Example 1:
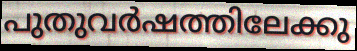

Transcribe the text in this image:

പുതുവർഷത്തിലേക്കു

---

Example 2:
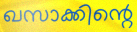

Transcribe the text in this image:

ഖസാക്കിന്റെ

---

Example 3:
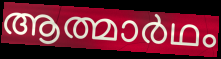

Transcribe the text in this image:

ആത്മാർഥം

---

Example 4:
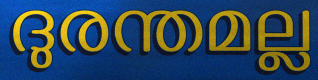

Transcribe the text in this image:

ദുരന്തമല്ല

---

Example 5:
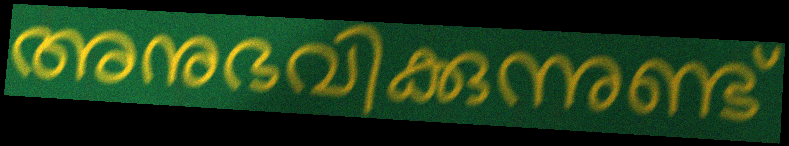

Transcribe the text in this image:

അനുഭവിക്കുന്നുണ്ട്